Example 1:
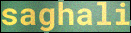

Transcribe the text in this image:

saghali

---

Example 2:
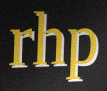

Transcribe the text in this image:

rhp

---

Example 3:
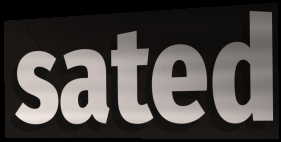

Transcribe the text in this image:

sated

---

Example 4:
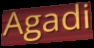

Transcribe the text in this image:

Agadi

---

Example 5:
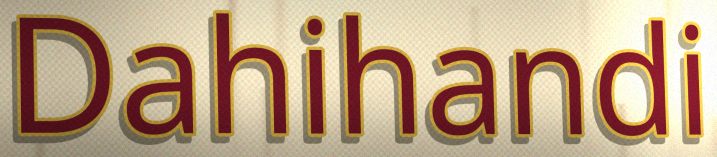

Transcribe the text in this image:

Dahihandi